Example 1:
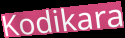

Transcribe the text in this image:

Kodikara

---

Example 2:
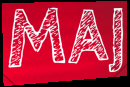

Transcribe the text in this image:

MAJ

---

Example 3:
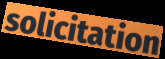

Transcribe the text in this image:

solicitation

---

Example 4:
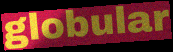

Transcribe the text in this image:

globular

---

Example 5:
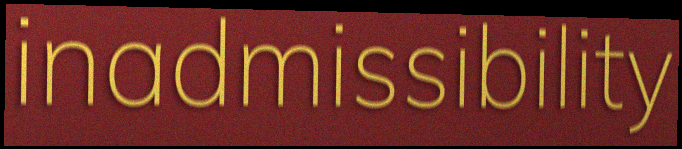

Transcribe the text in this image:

inadmissibility